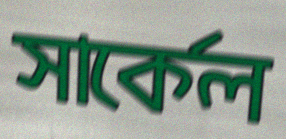
সার্কেল